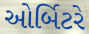
ઓર્બિટરે